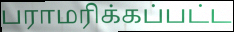
பராமரிக்கப்பட்ட